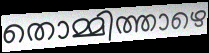
തൊമ്മിത്താഴെ